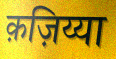
क़ज़िय्या